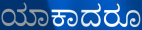
ಯಾಕಾದರೂ